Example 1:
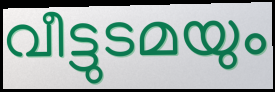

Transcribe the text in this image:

വീട്ടുടമയും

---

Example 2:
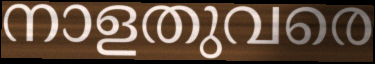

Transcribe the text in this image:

നാളതുവരെ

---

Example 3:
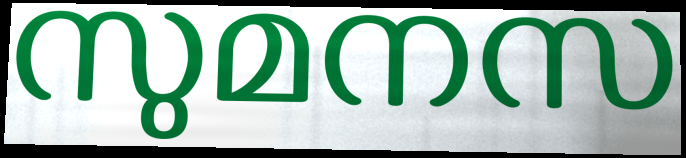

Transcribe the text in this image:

സുമനസ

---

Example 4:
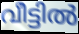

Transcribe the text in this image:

വീട്ടിൽ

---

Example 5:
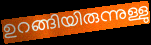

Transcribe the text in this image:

ഉറങ്ങിയിരുന്നുള്ളു